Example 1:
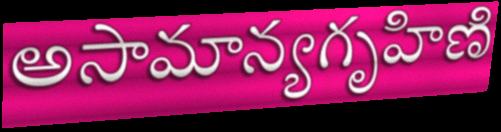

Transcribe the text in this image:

అసామాన్యగృహిణి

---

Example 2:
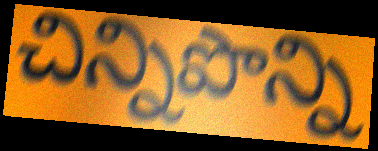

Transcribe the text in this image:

చిన్నిపొన్ని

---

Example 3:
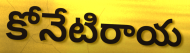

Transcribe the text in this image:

కోనేటిరాయ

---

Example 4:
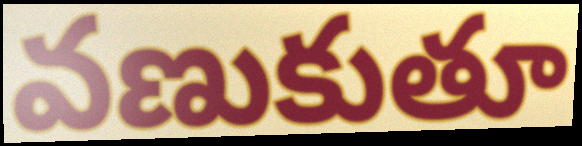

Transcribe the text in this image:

వణుకుతూ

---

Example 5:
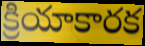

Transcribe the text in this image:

క్రియాకారక